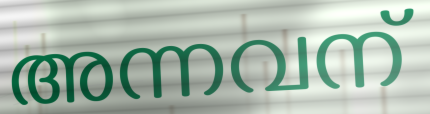
അന്നവന്